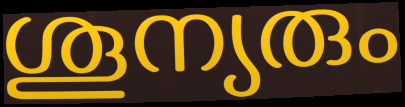
ശൂന്യരും